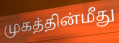
முகத்தின்மீது